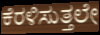
ಕೆರಳಿಸುತ್ತಲೇ